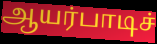
ஆயர்பாடிச்